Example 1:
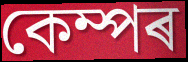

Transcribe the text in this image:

কেম্পৰ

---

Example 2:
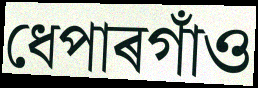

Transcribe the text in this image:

ধেপাৰগাঁও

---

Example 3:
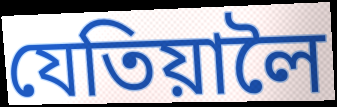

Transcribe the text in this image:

যেতিয়ালৈ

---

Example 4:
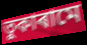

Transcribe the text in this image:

তুকাৰামে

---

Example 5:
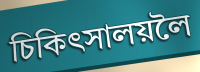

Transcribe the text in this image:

চিকিৎসালয়লৈ